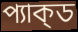
প্যাক্‌ড